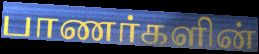
பாணர்களின்